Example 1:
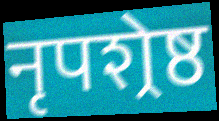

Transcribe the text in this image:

नृपश्रेष्ठ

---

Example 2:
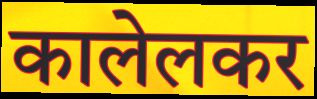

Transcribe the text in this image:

कालेलकर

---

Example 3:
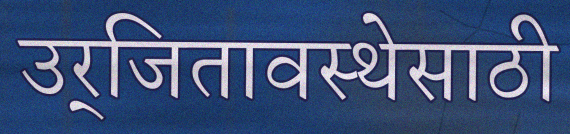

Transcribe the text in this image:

उर्जितावस्थेसाठी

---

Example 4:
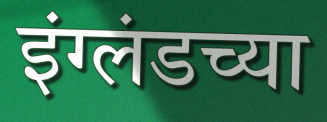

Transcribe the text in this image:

इंग्‍लंडच्या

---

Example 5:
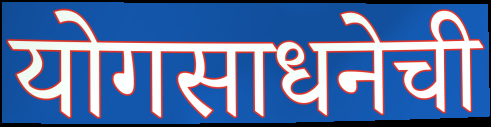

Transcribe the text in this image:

योगसाधनेची